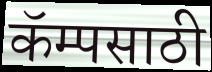
कॅम्पसाठी